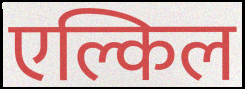
एल्किल